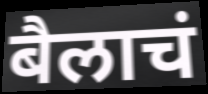
बैलाचं